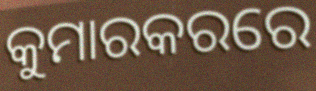
କୁମାରକରରେ